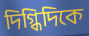
দিগ্ধিদিকে